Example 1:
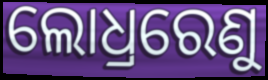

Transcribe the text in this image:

ଲୋଧ୍ରରେଣୁ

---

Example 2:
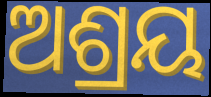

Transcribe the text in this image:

ଅଶ୍ରୟ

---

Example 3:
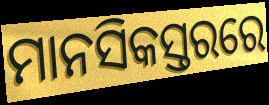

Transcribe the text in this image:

ମାନସିକସ୍ତରରେ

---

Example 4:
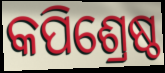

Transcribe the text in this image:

କପିଶ୍ରେଷ୍ଠ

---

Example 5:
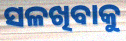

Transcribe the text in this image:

ସଳଖିବାକୁ